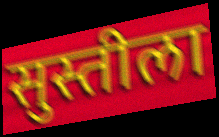
सुस्तीला